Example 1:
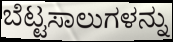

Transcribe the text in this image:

ಬೆಟ್ಟಸಾಲುಗಳನ್ನು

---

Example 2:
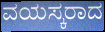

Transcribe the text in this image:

ವಯಸ್ಕರಾದ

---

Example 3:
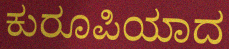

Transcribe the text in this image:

ಕುರೂಪಿಯಾದ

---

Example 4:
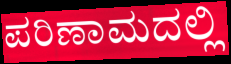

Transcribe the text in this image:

ಪರಿಣಾಮದಲ್ಲಿ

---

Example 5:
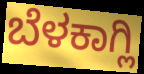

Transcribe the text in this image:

ಬೆಳಕಾಗ್ಲಿ